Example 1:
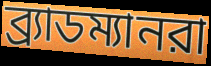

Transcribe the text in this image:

ব্র্যাডম্যানরা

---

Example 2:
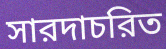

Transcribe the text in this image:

সারদাচরিত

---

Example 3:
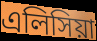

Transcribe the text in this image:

এলিসিয়া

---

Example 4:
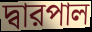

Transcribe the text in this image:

দ্বারপাল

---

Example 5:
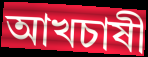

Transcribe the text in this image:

আখচাষী